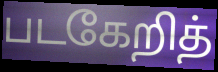
படகேறித்